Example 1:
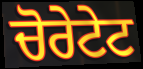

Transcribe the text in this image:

ਚੋਰੇਟੇਟ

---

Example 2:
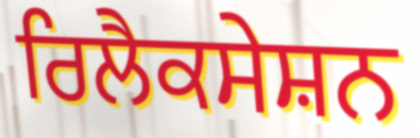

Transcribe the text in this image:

ਰਿਲੈਕਸੇਸ਼ਨ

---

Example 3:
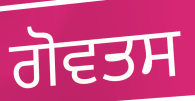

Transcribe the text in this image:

ਗੋਵਤਸ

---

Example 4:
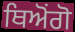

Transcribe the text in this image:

ਥਿਅੋਂਗੋ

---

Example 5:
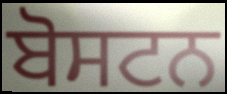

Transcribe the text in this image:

ਬੋਸਟਨ